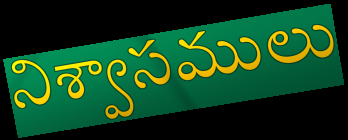
నిశ్వాసములు